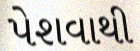
પેશવાથી